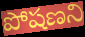
పోషణని